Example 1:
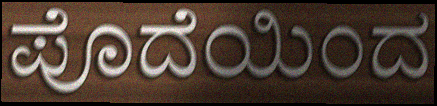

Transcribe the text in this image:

ಪೊದೆಯಿಂದ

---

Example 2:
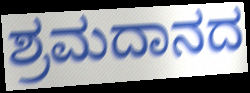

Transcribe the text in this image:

ಶ್ರಮದಾನದ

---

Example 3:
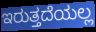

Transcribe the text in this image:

ಇರುತ್ತದೆಯಲ್ಲ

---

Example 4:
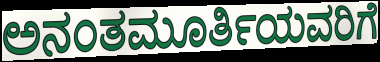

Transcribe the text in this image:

ಅನಂತಮೂರ್ತಿಯವರಿಗೆ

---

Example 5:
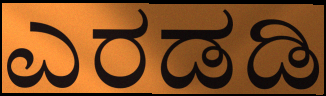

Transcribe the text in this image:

ಎರಡಡಿ